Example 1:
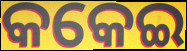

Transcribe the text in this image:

କକେଇ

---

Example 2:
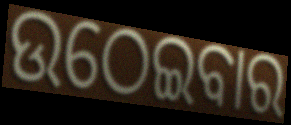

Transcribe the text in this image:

ଉଠେଇବାର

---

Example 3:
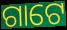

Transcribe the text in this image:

ଗାଟେ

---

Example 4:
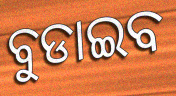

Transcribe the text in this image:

ବୁଡାଇବ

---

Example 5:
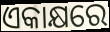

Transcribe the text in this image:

ଏକାକ୍ଷରେ